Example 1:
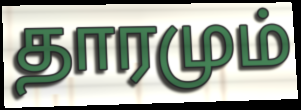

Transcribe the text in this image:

தாரமும்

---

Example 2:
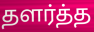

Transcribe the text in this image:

தளர்த்த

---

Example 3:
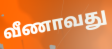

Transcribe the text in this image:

வீணாவது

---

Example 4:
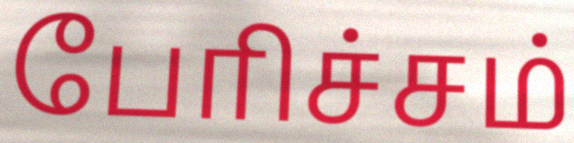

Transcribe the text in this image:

பேரிச்சம்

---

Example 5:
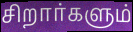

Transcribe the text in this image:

சிறார்களும்